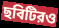
ছবিটিরও